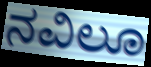
ನವಿಲೂ